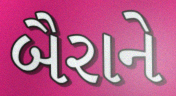
બૈરાને